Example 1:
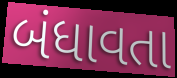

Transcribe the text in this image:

બંધાવતા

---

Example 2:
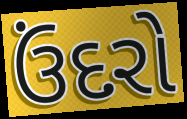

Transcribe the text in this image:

ઉંદરો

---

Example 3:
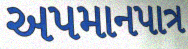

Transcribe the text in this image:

અપમાનપાત્ર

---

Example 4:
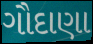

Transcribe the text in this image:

ગૌદાણા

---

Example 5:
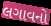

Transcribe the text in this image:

લગાવનો